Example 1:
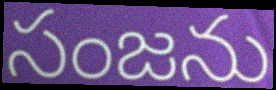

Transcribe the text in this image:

సంజను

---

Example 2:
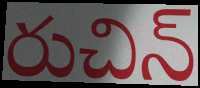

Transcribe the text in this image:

రుచిన్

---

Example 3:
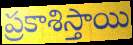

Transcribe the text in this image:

ప్రకాశిస్తాయి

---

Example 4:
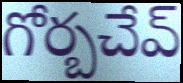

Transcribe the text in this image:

గోర్బచేవ్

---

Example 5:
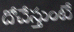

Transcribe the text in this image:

దోచేస్తుంటే